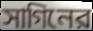
সাগিনের